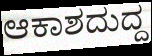
ಆಕಾಶದುದ್ದ